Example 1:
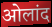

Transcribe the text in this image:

ओलांद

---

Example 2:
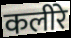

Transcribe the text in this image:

कलीरे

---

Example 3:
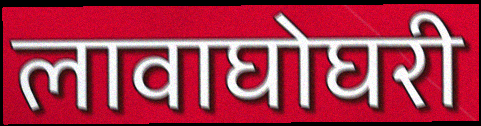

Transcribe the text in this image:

लावाघोघरी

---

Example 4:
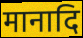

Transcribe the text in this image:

मानादि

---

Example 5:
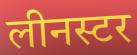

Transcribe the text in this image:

लीनस्टर